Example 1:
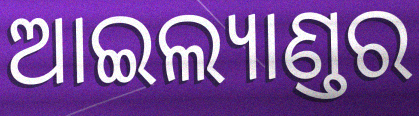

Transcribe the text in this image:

ଆଇଲ୍ୟାଣ୍ଡର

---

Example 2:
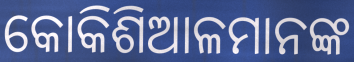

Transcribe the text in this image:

କୋକିଶିଆଳମାନଙ୍କ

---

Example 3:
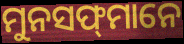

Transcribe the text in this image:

ମୁନସଫ୍‍ମାନେ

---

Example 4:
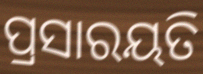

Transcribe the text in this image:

ପ୍ରସାରୟତି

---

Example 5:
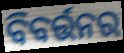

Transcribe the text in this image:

ବିବର୍ତ୍ତନର